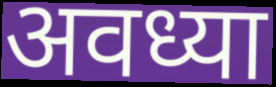
अवध्या